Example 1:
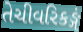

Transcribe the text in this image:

તેચીવરિકઙ્ગં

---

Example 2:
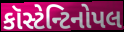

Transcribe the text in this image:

કૉસ્ટેન્ટિનોપલ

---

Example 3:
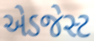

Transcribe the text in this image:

એડજેસ્ટ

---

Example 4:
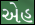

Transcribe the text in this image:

એહ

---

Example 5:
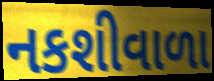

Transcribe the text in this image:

નકશીવાળા